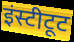
इंस्टीटूट